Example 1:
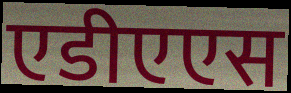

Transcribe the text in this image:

एडीएएस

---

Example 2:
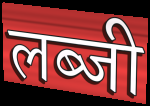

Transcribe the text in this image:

लब्जी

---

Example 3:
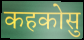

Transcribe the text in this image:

कहकोसु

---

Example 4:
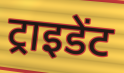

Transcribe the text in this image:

ट्राइडेंट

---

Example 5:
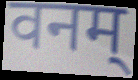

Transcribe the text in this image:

वनम्